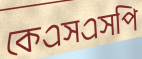
কেএসএসপি